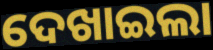
ଦେଖାଇଲା